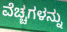
ವೆಚ್ಚಗಳನ್ನು